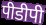
पीडीपी